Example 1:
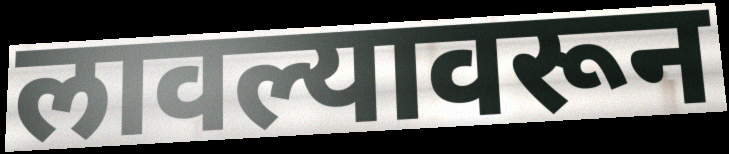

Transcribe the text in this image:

लावल्यावरून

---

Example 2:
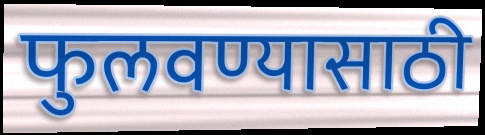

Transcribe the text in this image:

फुलवण्यासाठी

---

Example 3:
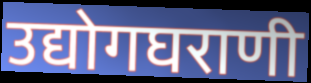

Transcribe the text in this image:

उद्योगघराणी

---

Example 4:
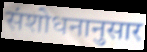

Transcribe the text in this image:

संशोधनानुसार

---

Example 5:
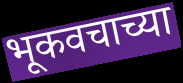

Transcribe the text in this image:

भूकवचाच्या